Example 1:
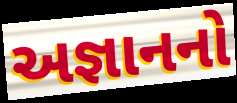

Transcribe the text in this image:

અજ્ઞાનનો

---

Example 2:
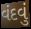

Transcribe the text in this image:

વંદવું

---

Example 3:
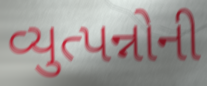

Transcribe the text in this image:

વ્યુત્પન્નોની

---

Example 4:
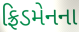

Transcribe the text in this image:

ફ્રિડમેનના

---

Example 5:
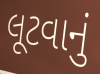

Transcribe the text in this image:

લૂટવાનું